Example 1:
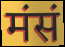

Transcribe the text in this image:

मंसं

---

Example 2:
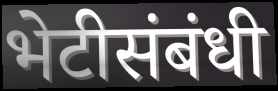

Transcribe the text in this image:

भेटीसंबंधी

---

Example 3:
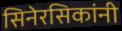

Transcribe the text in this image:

सिनेरसिकांनी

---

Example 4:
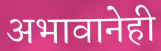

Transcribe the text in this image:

अभावानेही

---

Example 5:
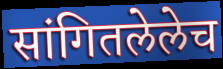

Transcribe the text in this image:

सांगितलेलेच